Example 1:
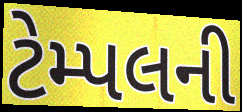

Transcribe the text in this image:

ટેમ્પલની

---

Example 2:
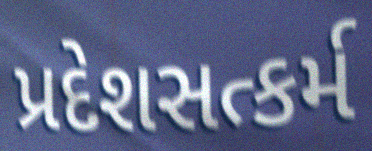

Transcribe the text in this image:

પ્રદેશસત્કર્મ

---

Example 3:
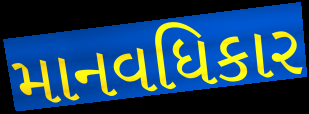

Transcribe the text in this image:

માનવધિકાર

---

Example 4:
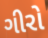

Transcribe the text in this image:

ગીરો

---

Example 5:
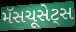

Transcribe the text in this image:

મૅસચૂસેટ્સ